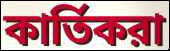
কার্তিকরা